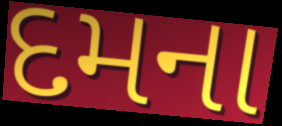
દમના